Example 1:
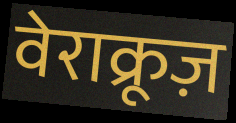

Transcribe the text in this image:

वेराक्रूज़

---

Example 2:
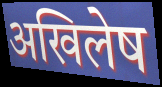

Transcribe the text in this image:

अखिलेष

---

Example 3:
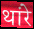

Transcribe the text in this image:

थांरे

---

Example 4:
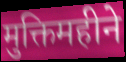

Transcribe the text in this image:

मुक्तिमहीने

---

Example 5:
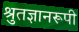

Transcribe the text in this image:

श्रुतज्ञानरूपी